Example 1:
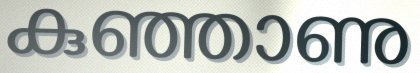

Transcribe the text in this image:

കുഞ്ഞാണു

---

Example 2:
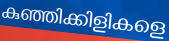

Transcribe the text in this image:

കുഞ്ഞിക്കിളികളെ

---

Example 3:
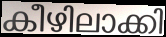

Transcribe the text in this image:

കീഴിലാക്കി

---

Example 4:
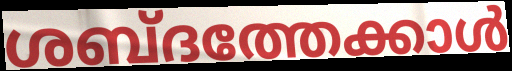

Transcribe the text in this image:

ശബ്ദത്തേക്കാൾ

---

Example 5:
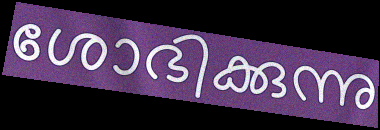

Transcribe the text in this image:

ശോഭിക്കുന്നു